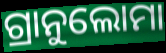
ଗ୍ରାନୁଲୋମା